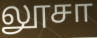
லூசா